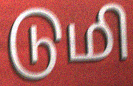
டுமி